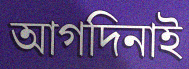
আগদিনাই